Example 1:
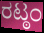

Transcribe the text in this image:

ರಟ್ಠಂ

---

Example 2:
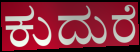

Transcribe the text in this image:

ಕುದುರೆ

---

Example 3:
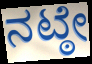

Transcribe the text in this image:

ನಟ್ಠೇ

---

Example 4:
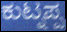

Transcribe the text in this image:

ಕುಟ್ನಪ್ಪ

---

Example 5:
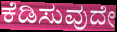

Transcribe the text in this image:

ಕೆಡಿಸುವುದೇ